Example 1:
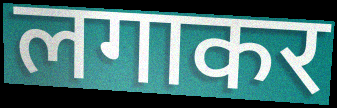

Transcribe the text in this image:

लगाकर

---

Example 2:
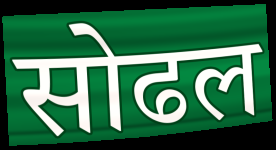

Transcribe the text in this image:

सोढल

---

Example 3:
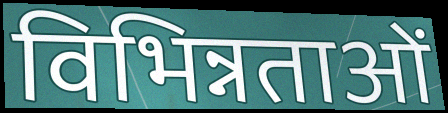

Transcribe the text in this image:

विभिन्नताओं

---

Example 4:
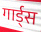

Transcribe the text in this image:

गार्ड्स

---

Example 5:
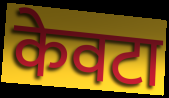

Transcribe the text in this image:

केवटा